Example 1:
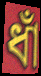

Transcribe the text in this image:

ধাঁ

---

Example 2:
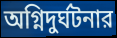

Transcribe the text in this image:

অগ্নিদুর্ঘটনার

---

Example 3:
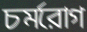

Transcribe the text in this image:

চর্মরোগ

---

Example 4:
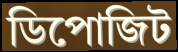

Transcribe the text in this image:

ডিপোজিট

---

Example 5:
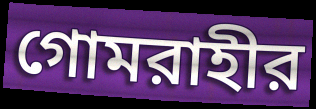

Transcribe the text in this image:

গোমরাহীর